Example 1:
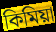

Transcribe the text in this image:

কিমিয়া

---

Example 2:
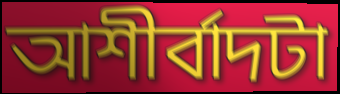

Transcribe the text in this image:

আশীর্বাদটা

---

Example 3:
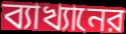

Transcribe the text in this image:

ব্যাখ্যানের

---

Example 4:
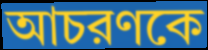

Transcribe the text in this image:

আচরণকে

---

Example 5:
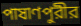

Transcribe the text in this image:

পাষাণপুরীর